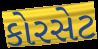
કોરસેટ